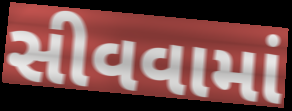
સીવવામાં